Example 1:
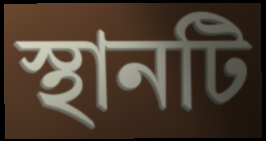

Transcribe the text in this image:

স্থানটি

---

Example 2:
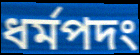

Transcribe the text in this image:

ধর্মপদং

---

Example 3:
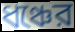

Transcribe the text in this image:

ধঞ্চের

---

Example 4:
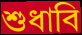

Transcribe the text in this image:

শুধাবি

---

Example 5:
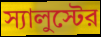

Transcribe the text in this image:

স্যালুস্টের